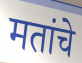
मतांचे